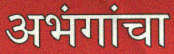
अभंगांचा